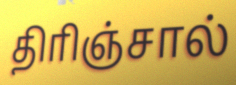
திரிஞ்சால்